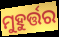
ମୁହୁର୍ତ୍ତର